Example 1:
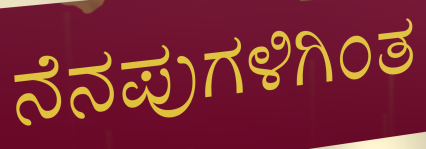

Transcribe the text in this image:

ನೆನಪುಗಳಿಗಿಂತ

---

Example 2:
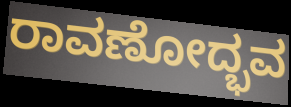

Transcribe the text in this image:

ರಾವಣೋದ್ಭವ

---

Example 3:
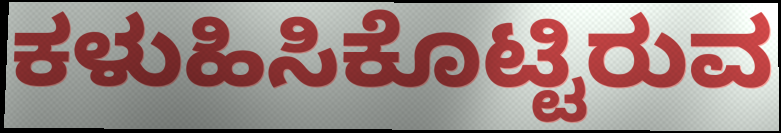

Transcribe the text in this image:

ಕಳುಹಿಸಿಕೊಟ್ಟಿರುವ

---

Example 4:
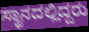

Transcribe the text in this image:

ಸ್ಥಾನದಲ್ಲಿದ್ದರು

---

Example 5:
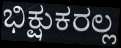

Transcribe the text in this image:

ಭಿಕ್ಷುಕರಲ್ಲ